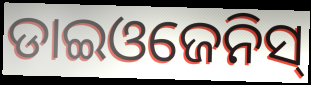
ଡାଇଓଜେନିସ୍